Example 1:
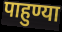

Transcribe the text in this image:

पाहुण्या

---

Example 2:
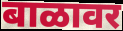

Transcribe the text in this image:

बाळावर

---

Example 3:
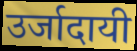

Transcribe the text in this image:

उर्जादायी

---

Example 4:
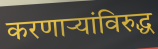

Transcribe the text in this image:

करणाऱ्यांविरुद्ध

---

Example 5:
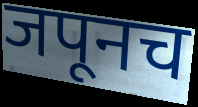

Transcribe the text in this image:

जपूनच